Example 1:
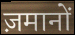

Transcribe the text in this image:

ज़मानों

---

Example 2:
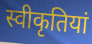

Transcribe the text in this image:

स्वीकृतियां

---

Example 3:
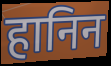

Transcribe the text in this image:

हानिन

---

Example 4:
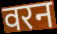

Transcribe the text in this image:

वरन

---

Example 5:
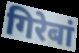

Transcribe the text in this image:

गिरेबां